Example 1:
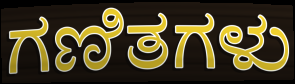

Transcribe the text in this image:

ಗಣಿತಗಳು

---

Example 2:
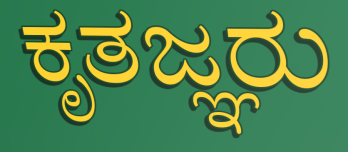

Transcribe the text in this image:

ಕೃತಜ್ಞರು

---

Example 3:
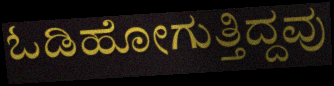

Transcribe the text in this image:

ಓಡಿಹೋಗುತ್ತಿದ್ದವು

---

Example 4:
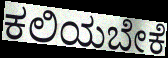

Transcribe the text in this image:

ಕಲಿಯಬೇಕೆ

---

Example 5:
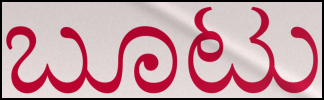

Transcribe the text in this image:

ಬೂಟು